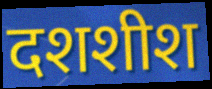
दशशीश